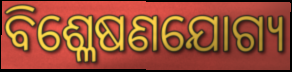
ବିଶ୍ଳେଷଣଯୋଗ୍ୟ